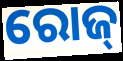
ରୋଜ୍